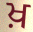
ਖ਼